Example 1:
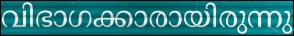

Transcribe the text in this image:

വിഭാഗക്കാരായിരുന്നു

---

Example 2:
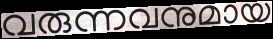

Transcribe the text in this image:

വരുന്നവനുമായ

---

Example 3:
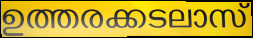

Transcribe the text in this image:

ഉത്തരക്കടലാസ്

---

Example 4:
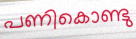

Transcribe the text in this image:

പണികൊണ്ടു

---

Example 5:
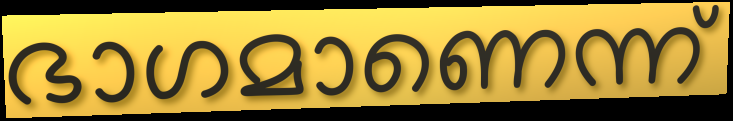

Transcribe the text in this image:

ഭാഗമാണെന്ന്